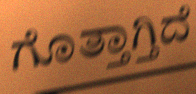
ಗೊತ್ತಾಗ್ತಿದೆ